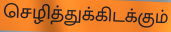
செழித்துக்கிடக்கும்